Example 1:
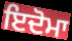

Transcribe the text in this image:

ਇਦੋਮਾ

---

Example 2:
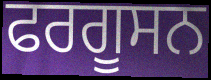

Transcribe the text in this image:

ਫਰਗੂਸਨ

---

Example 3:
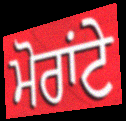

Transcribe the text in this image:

ਮੋਰਾਂਟੇ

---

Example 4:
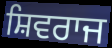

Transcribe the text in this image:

ਸ਼ਿਵਰਾਜ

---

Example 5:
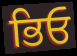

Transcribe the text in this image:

ਭਿਓ